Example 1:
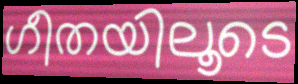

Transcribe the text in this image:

ഗീതയിലൂടെ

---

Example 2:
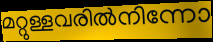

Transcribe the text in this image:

മറ്റുള്ളവരിൽനിന്നോ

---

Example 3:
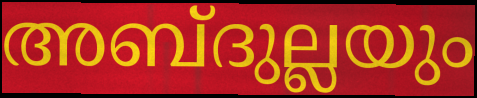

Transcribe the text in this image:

അബ്ദുല്ലയും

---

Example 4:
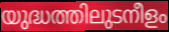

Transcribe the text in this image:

യുദ്ധത്തിലുടനീളം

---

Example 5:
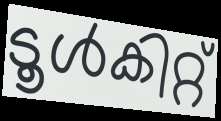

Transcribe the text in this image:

ടൂൾകിറ്റ്